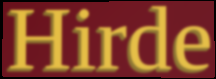
Hirde